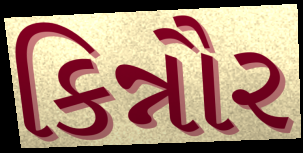
કિન્નૌર